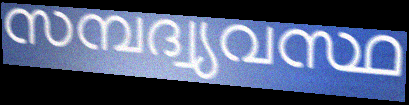
സമ്പദ്വ്യവസ്ഥ